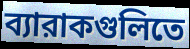
ব্যারাকগুলিতে